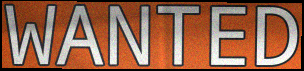
WANTED